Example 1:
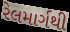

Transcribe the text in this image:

રેલમાર્ગથી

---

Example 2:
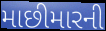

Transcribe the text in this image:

માછીમારની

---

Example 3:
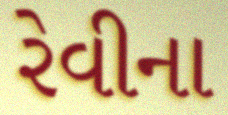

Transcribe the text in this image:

રેવીના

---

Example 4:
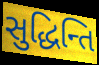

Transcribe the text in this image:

સુદ્ધિન્તિ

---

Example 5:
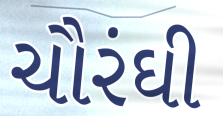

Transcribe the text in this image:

ચૌરંઘી